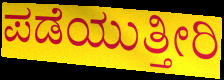
ಪಡೆಯುತ್ತೀರಿ